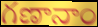
గణానాం